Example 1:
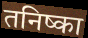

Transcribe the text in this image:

तनिष्का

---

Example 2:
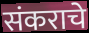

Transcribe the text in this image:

संकराचे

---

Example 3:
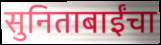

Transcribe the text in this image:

सुनिताबाईंचा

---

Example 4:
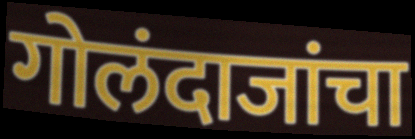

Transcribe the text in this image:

गोलंदाजांचा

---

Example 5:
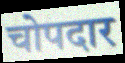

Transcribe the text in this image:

चोपदार